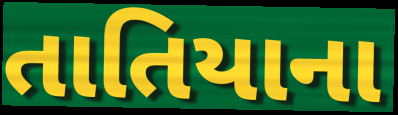
તાતિયાના